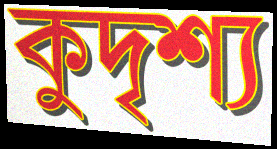
কুদৃশ্য